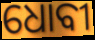
ଧୋବୀ